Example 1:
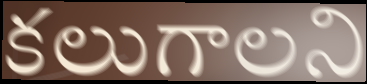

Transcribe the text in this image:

కలుగాలని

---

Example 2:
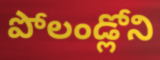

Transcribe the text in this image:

పోలండ్లోని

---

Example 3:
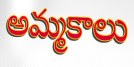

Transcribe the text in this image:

అమ్మకాలు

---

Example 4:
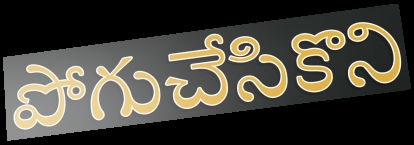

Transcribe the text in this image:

పోగుచేసికొని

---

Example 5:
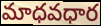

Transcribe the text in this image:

మాధవధార